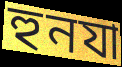
হুনযা